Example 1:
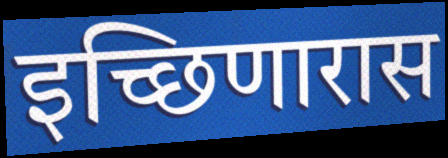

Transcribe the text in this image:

इच्छिणारास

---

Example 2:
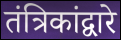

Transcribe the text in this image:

तंत्रिकांद्वारे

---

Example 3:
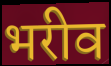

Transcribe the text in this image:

भरीव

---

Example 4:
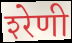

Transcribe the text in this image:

श्रेणी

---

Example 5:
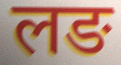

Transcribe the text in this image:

लङ